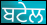
ਬਟੇਲ